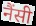
नैंसी